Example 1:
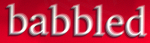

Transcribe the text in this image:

babbled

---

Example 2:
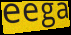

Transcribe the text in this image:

eega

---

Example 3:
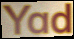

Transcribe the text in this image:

Yad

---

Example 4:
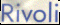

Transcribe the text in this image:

Rivoli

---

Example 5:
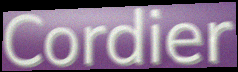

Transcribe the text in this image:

Cordier